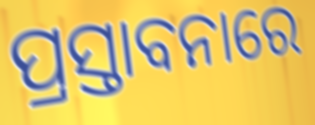
ପ୍ରସ୍ତାବନାରେ